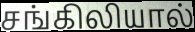
சங்கிலியால்